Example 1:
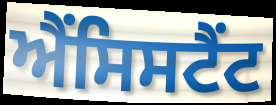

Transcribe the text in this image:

ਐਂਸਿਸਟੈਂਟ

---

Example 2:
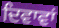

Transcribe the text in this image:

ਦਿਵਾਵਾਂ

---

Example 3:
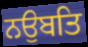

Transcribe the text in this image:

ਨਉਬਤਿ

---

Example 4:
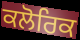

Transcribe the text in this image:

ਕਲੋਰਿਕ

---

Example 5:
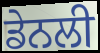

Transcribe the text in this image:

ਡੇਨਲੀ